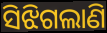
ସିଝିଗଲାଣି